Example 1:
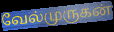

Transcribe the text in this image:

வேல்முருகன்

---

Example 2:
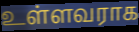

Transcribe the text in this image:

உள்ளவராக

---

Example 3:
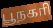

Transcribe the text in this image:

பூநகரி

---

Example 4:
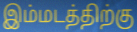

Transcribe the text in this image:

இம்மடத்திற்கு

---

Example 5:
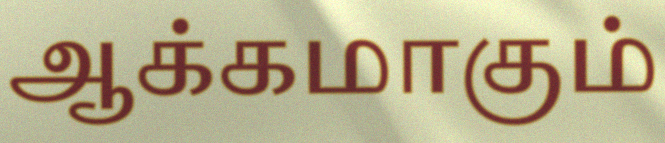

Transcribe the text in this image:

ஆக்கமாகும்